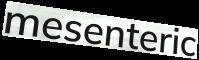
mesenteric